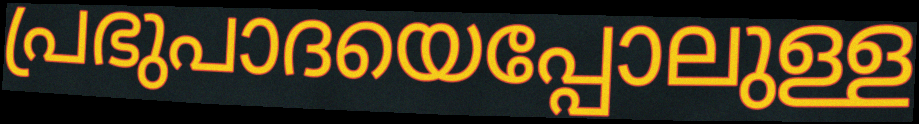
പ്രഭുപാദയെപ്പോലുള്ള